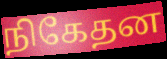
நிகேதன